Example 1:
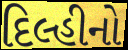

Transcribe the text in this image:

દિલ્હીનો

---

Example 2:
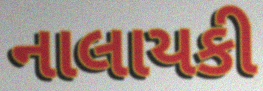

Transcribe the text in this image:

નાલાયકી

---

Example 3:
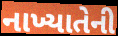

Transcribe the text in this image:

નાખ્યાતેની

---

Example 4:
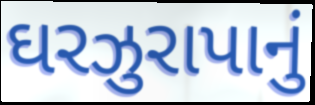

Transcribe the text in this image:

ઘરઝુરાપાનું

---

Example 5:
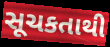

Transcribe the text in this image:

સૂચકતાથી